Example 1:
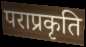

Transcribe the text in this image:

पराप्रकृति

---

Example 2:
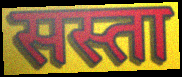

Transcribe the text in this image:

सस्‍ता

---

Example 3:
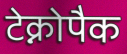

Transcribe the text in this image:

टेक्नोपैक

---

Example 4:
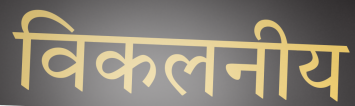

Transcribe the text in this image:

विकलनीय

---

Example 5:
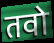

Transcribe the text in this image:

तवो